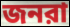
জনরা